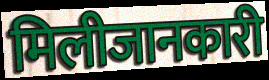
मिलीजानकारी